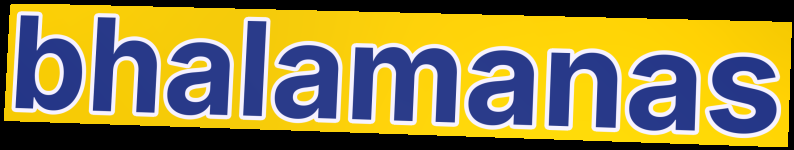
bhalamanas